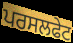
ਪਰਸਲਫੇਟ